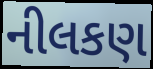
નીલકણ